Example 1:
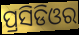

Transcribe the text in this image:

ପ୍ରସିଡିଓର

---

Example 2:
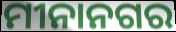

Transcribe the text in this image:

ମୀନାନଗର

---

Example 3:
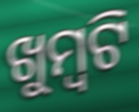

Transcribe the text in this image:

ଖୁମ୍ବଟି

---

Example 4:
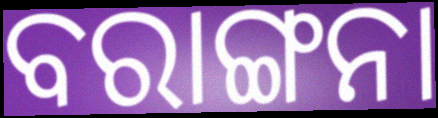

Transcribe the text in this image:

ବରାଙ୍ଗନା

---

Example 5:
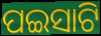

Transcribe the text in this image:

ପଇସାଟି